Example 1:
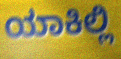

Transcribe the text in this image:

ಯಾಕಿಲ್ಲಿ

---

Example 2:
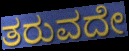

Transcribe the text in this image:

ತರುವದೇ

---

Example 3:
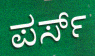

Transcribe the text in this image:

ಪರ್ಸ್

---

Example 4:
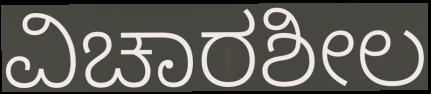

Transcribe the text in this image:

ವಿಚಾರಶೀಲ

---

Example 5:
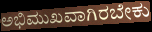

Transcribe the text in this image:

ಅಭಿಮುಖವಾಗಿರಬೇಕು